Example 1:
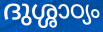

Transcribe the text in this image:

ദുശ്ശാഠ്യം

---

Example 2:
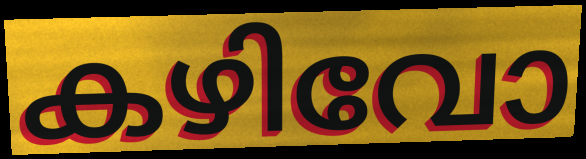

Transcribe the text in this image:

കഴിവോ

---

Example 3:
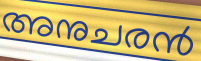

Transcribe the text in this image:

അനുചരൻ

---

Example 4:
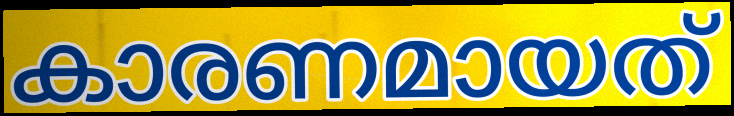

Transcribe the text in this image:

കാരണമായത്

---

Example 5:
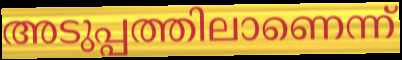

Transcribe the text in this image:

അടുപ്പത്തിലാണെന്ന്